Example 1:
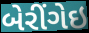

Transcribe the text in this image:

બેરીંગેઇ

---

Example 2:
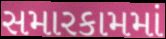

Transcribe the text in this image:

સમારકામમાં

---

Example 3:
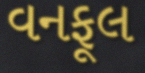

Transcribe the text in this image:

વનફૂલ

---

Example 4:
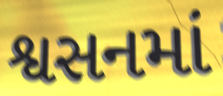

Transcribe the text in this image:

શ્વસનમાં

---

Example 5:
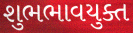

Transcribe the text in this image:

શુભભાવયુક્ત